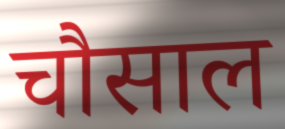
चौसाल